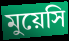
মুয়েসি